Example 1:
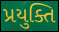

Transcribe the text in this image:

પ્રયુક્તિ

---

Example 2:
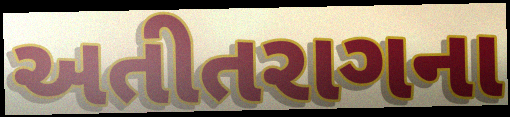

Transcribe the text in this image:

અતીતરાગના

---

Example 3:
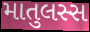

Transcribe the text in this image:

માતુલસ્સ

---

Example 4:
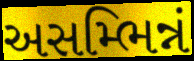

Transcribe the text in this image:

અસમ્ભિન્નં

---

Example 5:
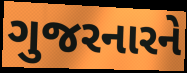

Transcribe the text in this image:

ગુજરનારને